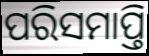
ପରିସମାପ୍ତି